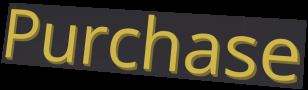
Purchase